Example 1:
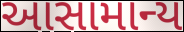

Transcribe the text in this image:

આસામાન્ય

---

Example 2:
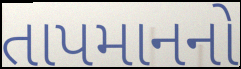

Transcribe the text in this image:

તાપમાનનો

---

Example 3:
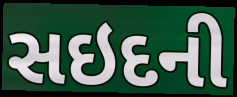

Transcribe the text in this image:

સઇદની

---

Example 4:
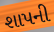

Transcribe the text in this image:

શાપની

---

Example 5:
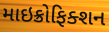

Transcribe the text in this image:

માઇક્રોફિક્શન